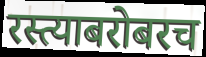
रस्त्याबरोबरच